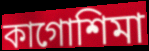
কাগোশিমা